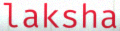
laksha